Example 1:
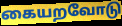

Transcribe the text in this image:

கையறவோடு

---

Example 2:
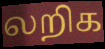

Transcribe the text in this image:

லறிக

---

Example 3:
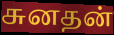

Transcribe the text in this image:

சுனதன்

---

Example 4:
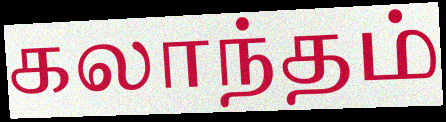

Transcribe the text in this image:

கலாந்தம்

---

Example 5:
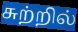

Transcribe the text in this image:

சுற்றில்